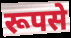
रूपसे